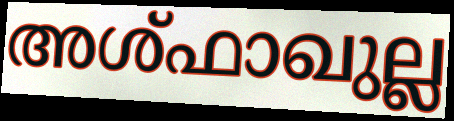
അശ്ഫാഖുല്ല